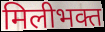
मिलीभक्त